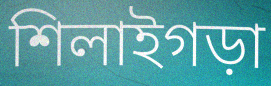
শিলাইগড়া